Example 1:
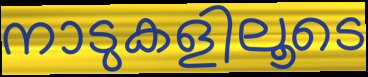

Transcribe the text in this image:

നാടുകളിലൂടെ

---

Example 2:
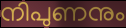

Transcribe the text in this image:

നിപുണനും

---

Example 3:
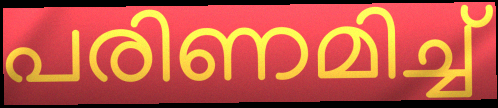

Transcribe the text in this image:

പരിണമിച്ച്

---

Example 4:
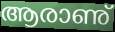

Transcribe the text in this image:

ആരാണു്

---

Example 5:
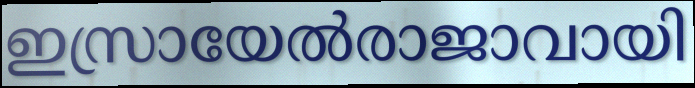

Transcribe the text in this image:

ഇസ്രായേൽരാജാവായി